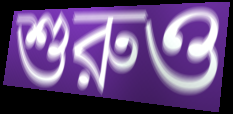
শুরুও